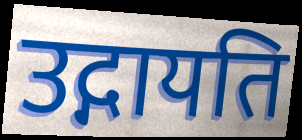
उद्गायति